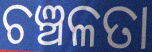
ଚଞ୍ଚଳତା